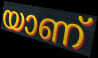
യാണ്